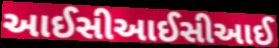
આઈસીઆઈસીઆઈ